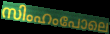
സിംഹംപോലെ